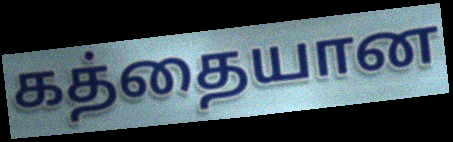
கத்தையான